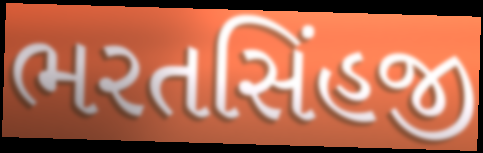
ભરતસિંહજી